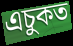
এচুকত